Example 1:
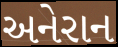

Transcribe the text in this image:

અનેરાન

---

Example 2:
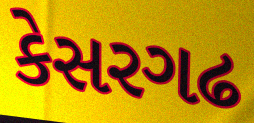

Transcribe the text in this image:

કેસરગઢ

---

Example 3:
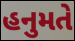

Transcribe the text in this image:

હનુમતે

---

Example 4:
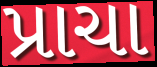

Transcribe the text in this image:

પ્રાચા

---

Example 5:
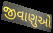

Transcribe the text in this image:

જીવાણુઓ